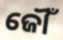
ଜୌଁ